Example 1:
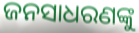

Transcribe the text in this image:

ଜନସାଧରଣଙ୍କୁ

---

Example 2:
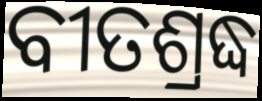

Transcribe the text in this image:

ବୀତଶ୍ରଦ୍ଧ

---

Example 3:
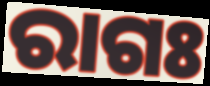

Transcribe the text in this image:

ରାଗଃ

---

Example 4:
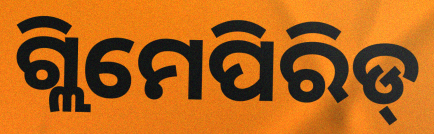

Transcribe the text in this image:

ଗ୍ଲିମେପିରିଡ୍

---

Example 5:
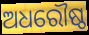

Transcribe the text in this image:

ଅଧରୌଷ୍ଠ